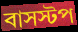
বাসস্টপ